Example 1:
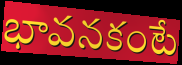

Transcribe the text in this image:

భావనకంటే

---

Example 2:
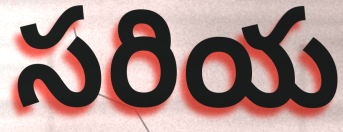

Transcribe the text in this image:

సరియ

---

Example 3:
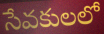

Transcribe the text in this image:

సేవకులలో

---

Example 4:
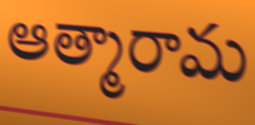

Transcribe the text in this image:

ఆత్మారామ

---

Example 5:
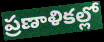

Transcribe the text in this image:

ప్రణాళికల్లో